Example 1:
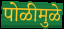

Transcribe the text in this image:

पोळीमुळे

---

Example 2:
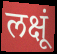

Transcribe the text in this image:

लक्षूं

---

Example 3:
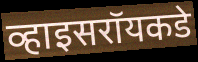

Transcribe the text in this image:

व्हाइसरॉयकडे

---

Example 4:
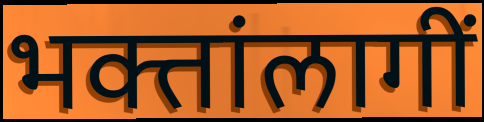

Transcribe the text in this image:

भक्तांलागीं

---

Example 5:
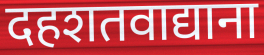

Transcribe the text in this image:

दहशतवाद्याना